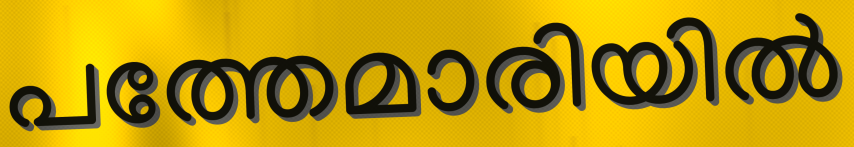
പത്തേമാരിയിൽ